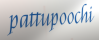
pattupoochi